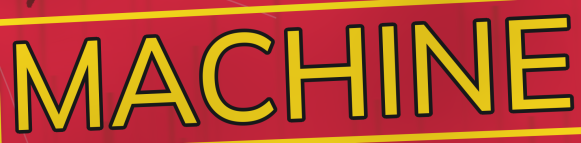
MACHINE